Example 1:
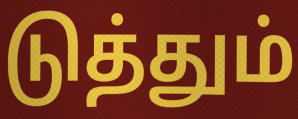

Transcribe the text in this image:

டுத்தும்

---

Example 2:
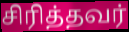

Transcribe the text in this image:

சிரித்தவர்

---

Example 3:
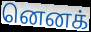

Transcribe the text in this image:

னெனக்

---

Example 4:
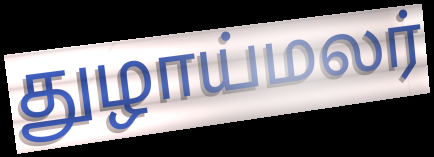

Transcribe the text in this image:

துழாய்மலர்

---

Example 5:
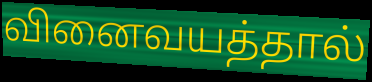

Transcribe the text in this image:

வினைவயத்தால்